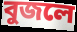
বুজলে